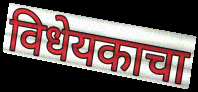
विधेयकाचा